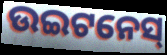
ଉଇଟନେସ୍